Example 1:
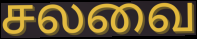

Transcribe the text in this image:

சலவை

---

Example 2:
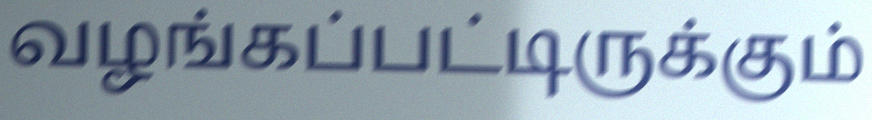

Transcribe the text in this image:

வழங்கப்பட்டிருக்கும்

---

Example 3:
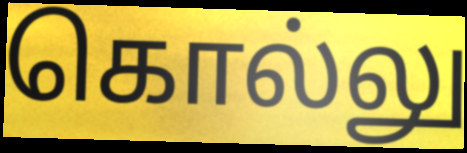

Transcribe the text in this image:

கொல்லு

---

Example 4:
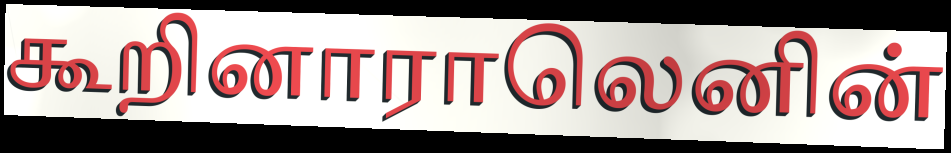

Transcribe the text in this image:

கூறினாராலெனின்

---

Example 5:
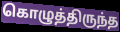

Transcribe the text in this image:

கொழுத்திருந்த